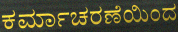
ಕರ್ಮಾಚರಣೆಯಿಂದ